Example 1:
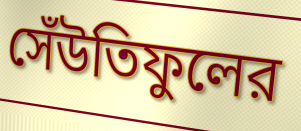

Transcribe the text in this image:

সেঁউতিফুলের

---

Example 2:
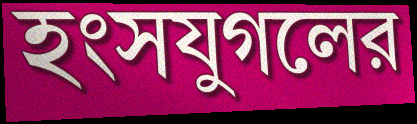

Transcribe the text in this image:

হংসযুগলের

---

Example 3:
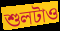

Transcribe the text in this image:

শুলটাও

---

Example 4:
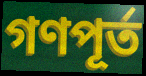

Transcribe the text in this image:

গণপূর্ত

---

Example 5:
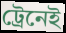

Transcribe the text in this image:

ট্রেনেই